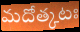
మదోత్కటః